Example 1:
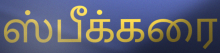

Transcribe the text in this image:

ஸ்பீக்கரை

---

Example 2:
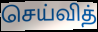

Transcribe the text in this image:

செய்வித்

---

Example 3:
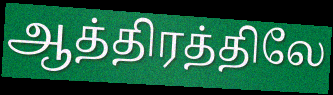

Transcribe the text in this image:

ஆத்திரத்திலே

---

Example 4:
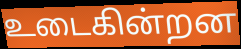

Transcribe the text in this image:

உடைகின்றன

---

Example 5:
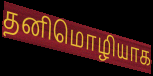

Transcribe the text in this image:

தனிமொழியாக